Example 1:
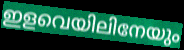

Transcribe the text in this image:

ഇളവെയിലിനേയും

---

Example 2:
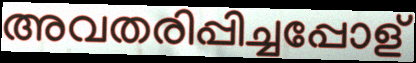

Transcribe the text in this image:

അവതരിപ്പിച്ചപ്പോള്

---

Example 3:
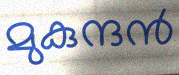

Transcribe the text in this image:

മുകുന്ദൻ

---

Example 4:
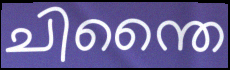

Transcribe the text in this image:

ചിന്തൈ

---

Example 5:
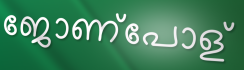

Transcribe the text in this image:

ജോണ്പോള്